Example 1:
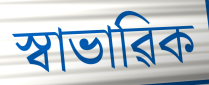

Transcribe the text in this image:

স্বাভাৱিক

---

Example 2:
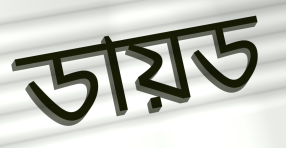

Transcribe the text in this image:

ডায়ড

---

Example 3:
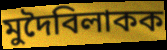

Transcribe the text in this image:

মুদৈবিলাকক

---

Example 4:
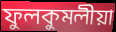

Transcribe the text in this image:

ফুলকুমলীয়া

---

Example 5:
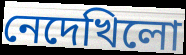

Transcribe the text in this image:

নেদেখিলো